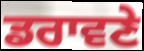
ਡਰਾਵਣੇ